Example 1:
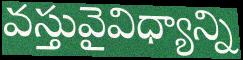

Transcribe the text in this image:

వస్తువైవిధ్యాన్ని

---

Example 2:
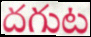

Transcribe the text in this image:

దగుట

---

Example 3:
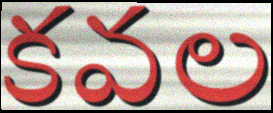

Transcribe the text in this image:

కవల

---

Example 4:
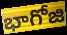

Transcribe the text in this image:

భాగోజి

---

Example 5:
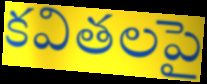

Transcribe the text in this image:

కవితలపై